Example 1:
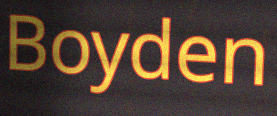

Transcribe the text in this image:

Boyden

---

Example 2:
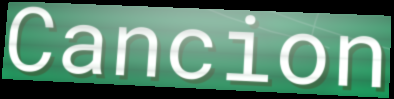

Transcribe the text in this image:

Cancion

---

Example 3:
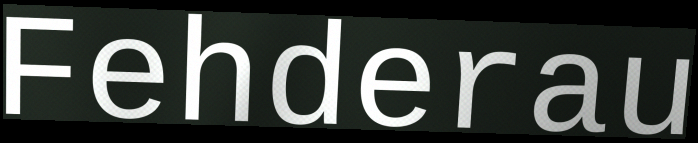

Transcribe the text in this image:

Fehderau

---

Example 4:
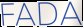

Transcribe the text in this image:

FADA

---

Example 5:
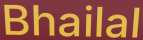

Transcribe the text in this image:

Bhailal